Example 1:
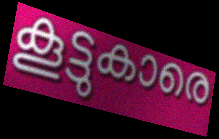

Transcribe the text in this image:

കൂട്ടുകാരെ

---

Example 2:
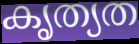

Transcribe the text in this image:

കൃത്യത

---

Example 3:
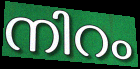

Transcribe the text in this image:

നിറം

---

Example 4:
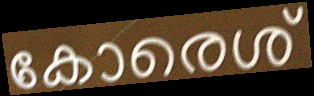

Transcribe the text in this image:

കോരെശ്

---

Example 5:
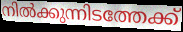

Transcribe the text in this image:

നിൽക്കുന്നിടത്തേക്ക്